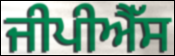
ਜੀਪੀਐੱਸ